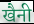
खैनी